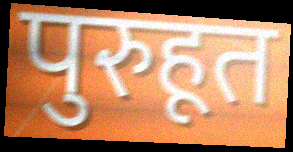
पुरुहूत